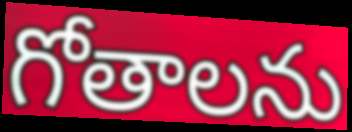
గోతాలను